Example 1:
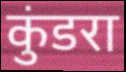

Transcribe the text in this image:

कुंडरा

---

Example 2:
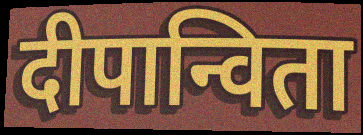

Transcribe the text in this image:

दीपान्विता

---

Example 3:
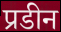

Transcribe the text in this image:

प्रडीन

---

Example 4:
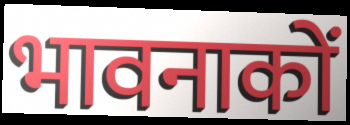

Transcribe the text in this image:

भावनाकों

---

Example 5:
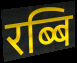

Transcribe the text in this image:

रब्बि